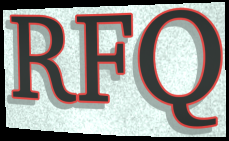
RFQ